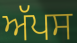
ਅੱਪਸ